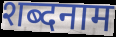
शब्दनाम